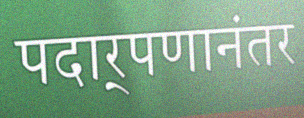
पदार्पणानंतर